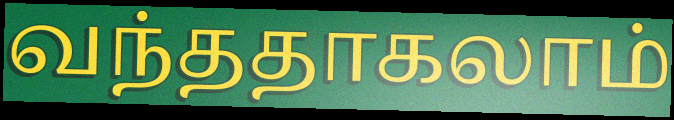
வந்ததாகலாம்